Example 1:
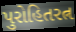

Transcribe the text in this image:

પુરોહિતરત્ન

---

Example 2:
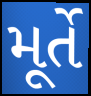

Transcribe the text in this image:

મૂર્તે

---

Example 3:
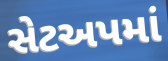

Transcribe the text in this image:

સેટઅપમાં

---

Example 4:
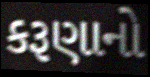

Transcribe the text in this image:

કરૂણાનો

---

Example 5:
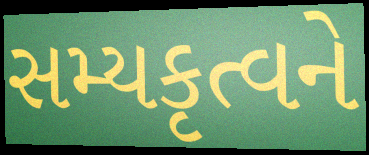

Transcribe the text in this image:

સમ્યકૃત્વને